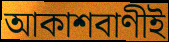
আকাশবাণীই